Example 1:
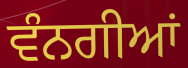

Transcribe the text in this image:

ਵੰਨਗੀਆਂ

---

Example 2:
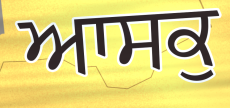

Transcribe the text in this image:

ਆਸਕੁ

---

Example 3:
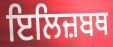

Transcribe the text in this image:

ਇਲਿਜ਼ਬਥ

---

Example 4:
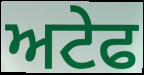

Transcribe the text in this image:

ਅਟੇਫ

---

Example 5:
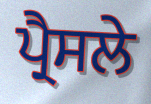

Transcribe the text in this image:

ਪ੍ਰੈਸਲੇ